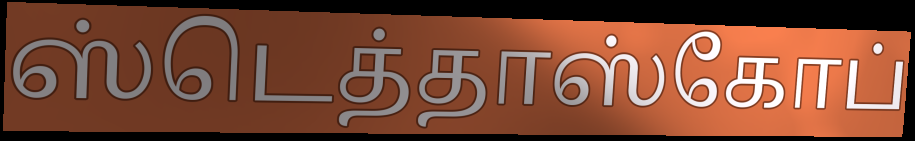
ஸ்டெத்தாஸ்கோப்